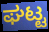
ಘಟ್ಟ